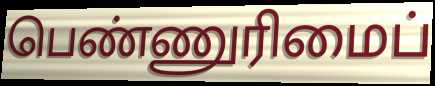
பெண்ணுரிமைப்